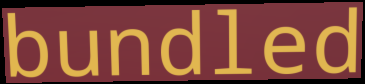
bundled